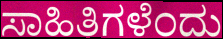
ಸಾಹಿತಿಗಳೆಂದು